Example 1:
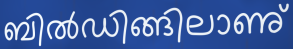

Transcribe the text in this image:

ബിൽഡിങ്ങിലാണു്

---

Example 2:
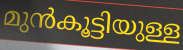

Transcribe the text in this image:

മുൻകൂട്ടിയുള്ള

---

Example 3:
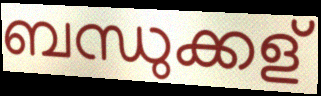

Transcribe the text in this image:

ബന്ധുക്കള്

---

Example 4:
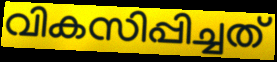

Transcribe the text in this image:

വികസിപ്പിച്ചത്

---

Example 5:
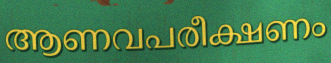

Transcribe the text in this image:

ആണവപരീക്ഷണം